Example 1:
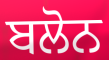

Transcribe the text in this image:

ਬਲੋਨ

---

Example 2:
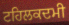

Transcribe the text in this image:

ਟਹਿਲਕਦਮੀ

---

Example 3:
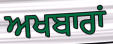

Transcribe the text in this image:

ਅਖਬਾਰਾਂ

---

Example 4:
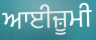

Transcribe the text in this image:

ਆਈਜ਼ੂਮੀ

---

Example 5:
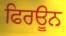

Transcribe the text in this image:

ਫਿਰਊਨ